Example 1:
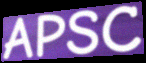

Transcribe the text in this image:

APSC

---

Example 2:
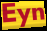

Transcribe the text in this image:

Eyn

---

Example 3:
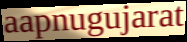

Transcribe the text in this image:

aapnugujarat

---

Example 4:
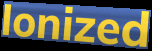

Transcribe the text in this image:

Ionized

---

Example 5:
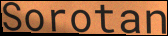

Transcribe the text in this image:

Sorotan